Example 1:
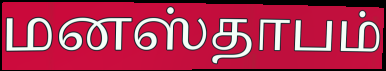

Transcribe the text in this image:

மனஸ்தாபம்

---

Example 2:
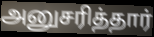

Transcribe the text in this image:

அனுசரித்தார்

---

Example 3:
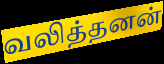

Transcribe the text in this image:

வலித்தனன்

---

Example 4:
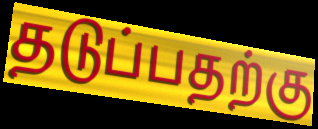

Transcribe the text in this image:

தடுப்பதற்கு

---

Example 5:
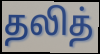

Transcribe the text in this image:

தலித்